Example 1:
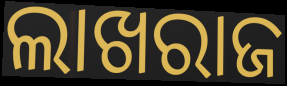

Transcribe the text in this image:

ଲାଖରାଜ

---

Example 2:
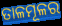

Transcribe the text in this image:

ତାଳମୂଳର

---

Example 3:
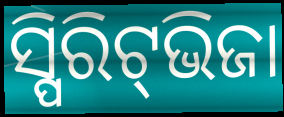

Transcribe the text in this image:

ସ୍ପିରିଟ୍‌ଭିଜା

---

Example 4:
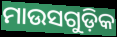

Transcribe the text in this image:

ମାଉସଗୁଡ଼ିକ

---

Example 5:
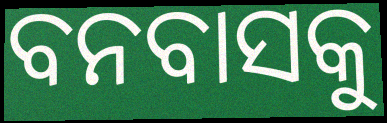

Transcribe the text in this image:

ବନବାସକୁ